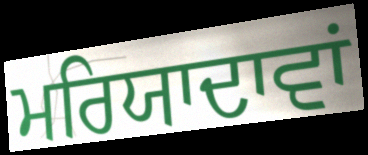
ਮਰਿਯਾਦਾਵਾਂ